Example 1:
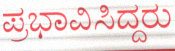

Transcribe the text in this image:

ಪ್ರಭಾವಿಸಿದ್ದರು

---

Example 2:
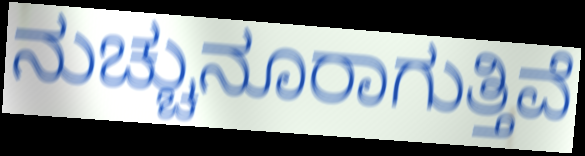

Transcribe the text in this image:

ನುಚ್ಚುನೂರಾಗುತ್ತಿವೆ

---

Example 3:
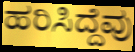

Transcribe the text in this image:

ಹರಿಸಿದ್ದೆವು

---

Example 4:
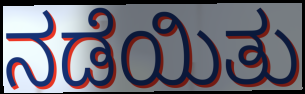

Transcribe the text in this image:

ನಡೆಯಿತು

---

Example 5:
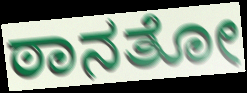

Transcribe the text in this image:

ಠಾನತೋ